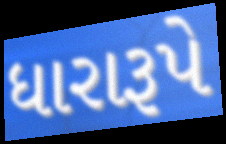
ધારારૂપે